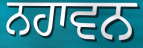
ਨਹਾਵਨ